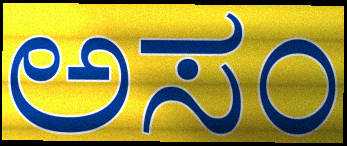
ಅಸಂ